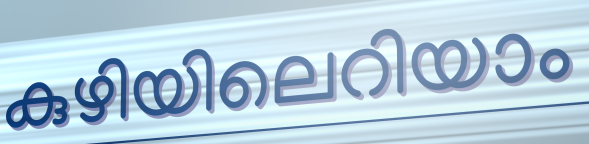
കുഴിയിലെറിയാം